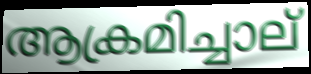
ആക്രമിച്ചാല്